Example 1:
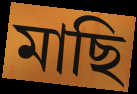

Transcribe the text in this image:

মাছি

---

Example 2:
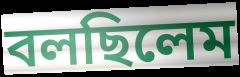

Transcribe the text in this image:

বলছিলেম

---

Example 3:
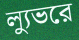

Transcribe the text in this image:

ল্যুভরে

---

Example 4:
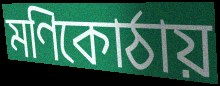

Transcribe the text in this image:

মণিকোঠায়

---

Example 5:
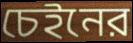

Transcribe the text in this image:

চেইনের